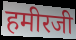
हमीरजी